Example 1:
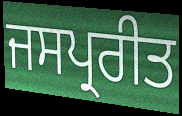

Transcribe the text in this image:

ਜਸਪ੍ਰਰੀਤ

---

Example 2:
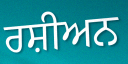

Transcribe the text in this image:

ਰਸ਼ੀਅਨ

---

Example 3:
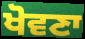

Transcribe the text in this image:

ਖੋਵਣਾ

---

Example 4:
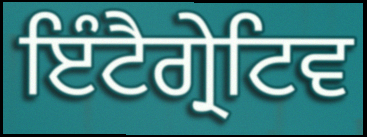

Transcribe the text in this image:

ਇੰਟੈਗ੍ਰੇਟਿਵ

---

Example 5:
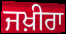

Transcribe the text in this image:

ਜਖ਼ੀਰਾ